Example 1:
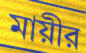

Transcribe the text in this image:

মায়ীর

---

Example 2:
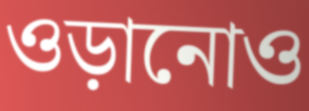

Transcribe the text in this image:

ওড়ানোও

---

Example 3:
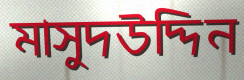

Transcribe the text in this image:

মাসুদউদ্দিন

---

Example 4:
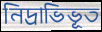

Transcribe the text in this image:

নিদ্রাভিভূত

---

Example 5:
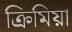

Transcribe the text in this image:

ক্রিমিয়া